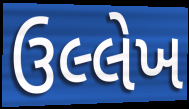
ઉલ્લેખ